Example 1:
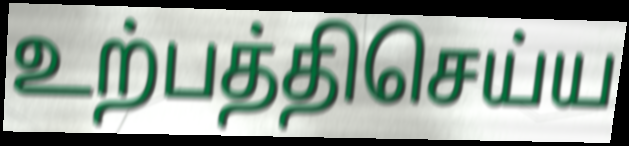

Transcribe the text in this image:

உற்பத்திசெய்ய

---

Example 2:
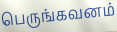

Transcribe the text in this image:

பெருங்கவனம்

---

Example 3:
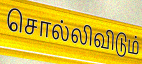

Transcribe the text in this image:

சொல்லிவிடும்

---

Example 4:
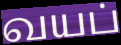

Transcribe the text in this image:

வயப்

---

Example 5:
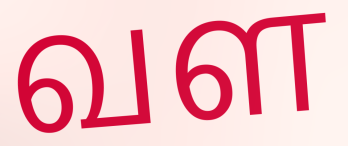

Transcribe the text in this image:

வள